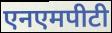
एनएमपीटी